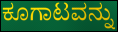
ಕೂಗಾಟವನ್ನು